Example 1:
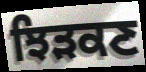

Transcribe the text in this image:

ਝਿੜਕਣ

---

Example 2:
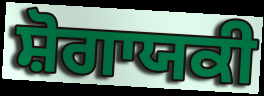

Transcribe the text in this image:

ਸ਼ੋਗਾਯਕੀ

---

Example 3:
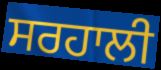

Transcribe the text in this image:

ਸਰਹਾਲੀ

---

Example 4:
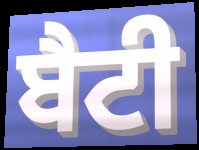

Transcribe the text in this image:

ਬੈਟੀ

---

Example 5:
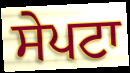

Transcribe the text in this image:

ਸੇਪਟਾ